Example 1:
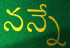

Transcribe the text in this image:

నన్నే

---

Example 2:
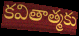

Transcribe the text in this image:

కవితాత్మకు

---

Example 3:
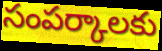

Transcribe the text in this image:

సంపర్కాలకు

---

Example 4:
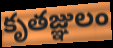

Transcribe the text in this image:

కృతజ్ఞులం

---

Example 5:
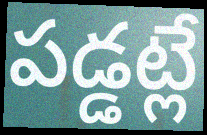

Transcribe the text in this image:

పడ్డట్లే